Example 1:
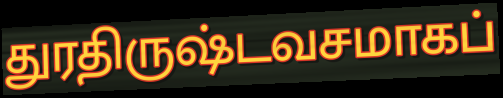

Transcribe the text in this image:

துரதிருஷ்டவசமாகப்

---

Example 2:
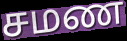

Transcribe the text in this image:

சமண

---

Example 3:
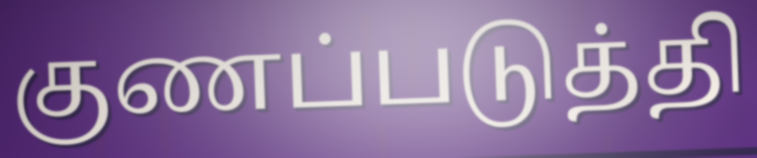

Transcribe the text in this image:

குணப்படுத்தி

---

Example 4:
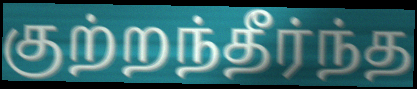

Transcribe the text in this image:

குற்றந்தீர்ந்த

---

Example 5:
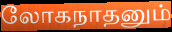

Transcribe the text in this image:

லோகநாதனும்